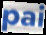
pai